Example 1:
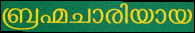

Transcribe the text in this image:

ബ്രഹ്മചാരിയായ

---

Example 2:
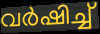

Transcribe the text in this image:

വർഷിച്ച്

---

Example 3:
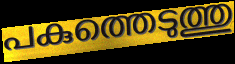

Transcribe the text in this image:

പകുത്തെടുത്തു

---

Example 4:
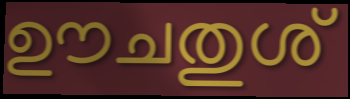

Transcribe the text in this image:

ഊചതുശ്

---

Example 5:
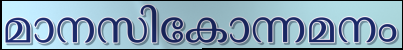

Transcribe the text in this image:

മാനസികോന്നമനം